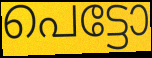
പെട്ടോ